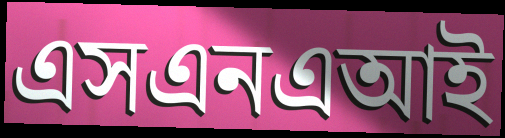
এসএনএআই